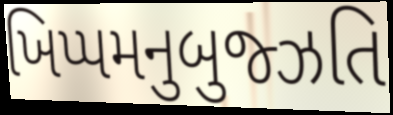
ખિપ્પમનુબુજ્ઝતિ